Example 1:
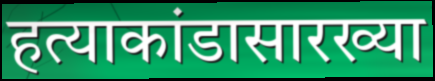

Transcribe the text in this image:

हत्याकांडासारख्या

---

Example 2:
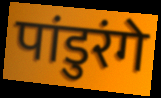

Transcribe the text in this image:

पांडुरंगे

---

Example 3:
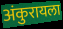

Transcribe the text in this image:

अंकुरायला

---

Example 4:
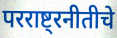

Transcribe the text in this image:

परराष्ट्रनीतीचे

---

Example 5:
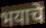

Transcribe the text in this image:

भयाचे